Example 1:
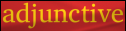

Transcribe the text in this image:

adjunctive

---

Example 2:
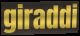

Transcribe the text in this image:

giraddi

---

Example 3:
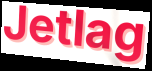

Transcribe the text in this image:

Jetlag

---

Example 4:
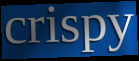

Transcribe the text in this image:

crispy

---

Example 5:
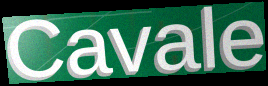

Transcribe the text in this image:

Cavale